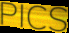
PICS